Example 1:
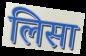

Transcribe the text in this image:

लिसा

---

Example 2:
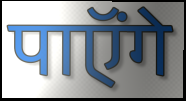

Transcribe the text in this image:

पाऍंगे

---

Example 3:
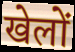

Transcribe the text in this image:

खेलों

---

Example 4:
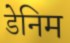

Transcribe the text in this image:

डेनिम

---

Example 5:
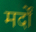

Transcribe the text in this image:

मर्दों